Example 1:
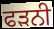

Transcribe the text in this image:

ਫੜਨੀ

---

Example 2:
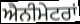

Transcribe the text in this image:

ਐਨੀਮੇਟਰਾਂ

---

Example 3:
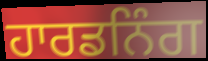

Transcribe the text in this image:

ਹਾਰਡਨਿੰਗ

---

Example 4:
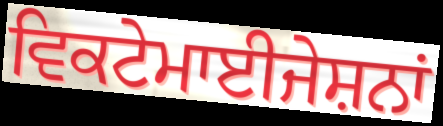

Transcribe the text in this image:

ਵਿਕਟੇਮਾਈਜੇਸ਼ਨਾਂ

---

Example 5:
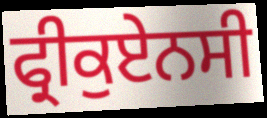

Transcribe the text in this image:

ਫ੍ਰੀਕੁਏਨਸੀ